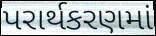
પરાર્થકરણમાં